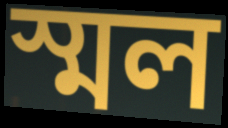
স্মল